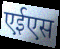
एईएस